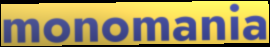
monomania